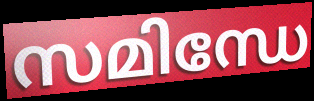
സമിന്ധേ